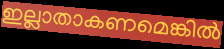
ഇല്ലാതാകണമെങ്കിൽ